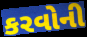
કરવોની